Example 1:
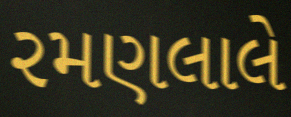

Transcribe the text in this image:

રમણલાલે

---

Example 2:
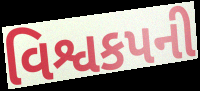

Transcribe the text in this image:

વિશ્વકપની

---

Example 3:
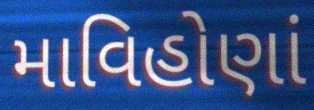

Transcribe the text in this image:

માવિહોણાં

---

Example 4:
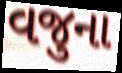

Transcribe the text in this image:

વજુના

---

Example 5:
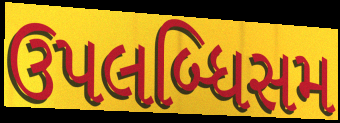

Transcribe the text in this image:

ઉપલબ્ધિસમ